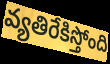
వ్యతిరేకిస్తోంది